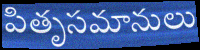
పితృసమానులు